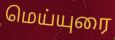
மெய்யுரை